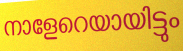
നാളേറെയായിട്ടും